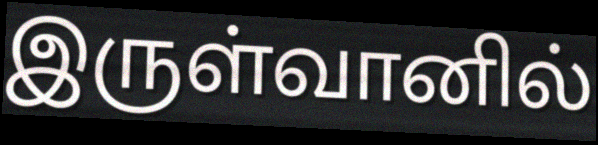
இருள்வானில்